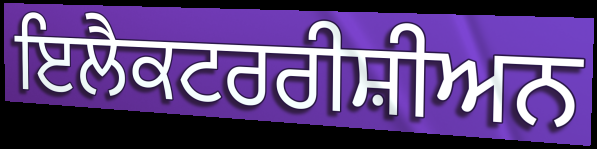
ਇਲੈਕਟਰਰੀਸ਼ੀਅਨ